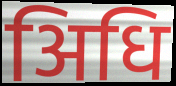
अिधि